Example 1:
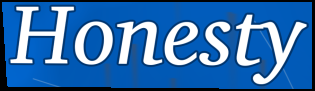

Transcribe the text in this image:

Honesty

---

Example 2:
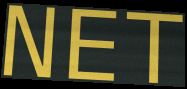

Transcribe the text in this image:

NET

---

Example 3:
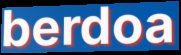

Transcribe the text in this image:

berdoa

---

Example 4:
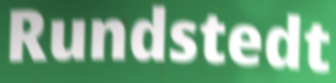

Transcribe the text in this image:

Rundstedt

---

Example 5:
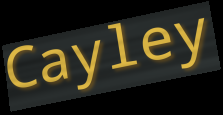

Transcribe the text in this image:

Cayley